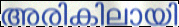
അരികിലായി